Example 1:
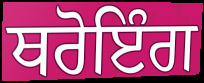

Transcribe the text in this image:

ਥਰੋਇੰਗ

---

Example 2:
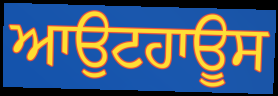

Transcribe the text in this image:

ਆਉਟਹਾਊਸ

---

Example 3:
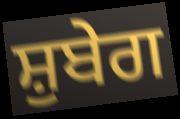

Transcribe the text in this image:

ਸ਼ੁਬੇਗ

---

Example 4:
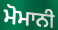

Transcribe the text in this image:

ਮੋਮਾਨੀ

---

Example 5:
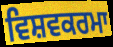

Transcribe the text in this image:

ਵਿਸ਼ਵਕਰਮਾ